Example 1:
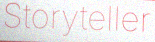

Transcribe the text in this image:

Storyteller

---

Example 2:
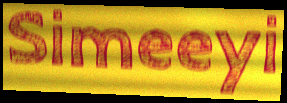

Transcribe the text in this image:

Simeeyi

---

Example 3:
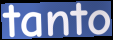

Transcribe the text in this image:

tanto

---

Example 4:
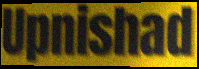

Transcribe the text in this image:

Upnishad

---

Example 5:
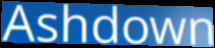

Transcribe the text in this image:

Ashdown